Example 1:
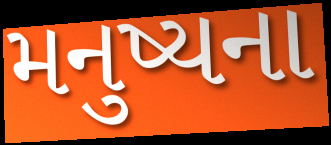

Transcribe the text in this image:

મનુષ્યના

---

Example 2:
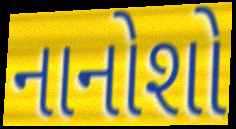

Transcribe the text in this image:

નાનોશો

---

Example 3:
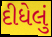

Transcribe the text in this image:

દીધેલું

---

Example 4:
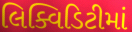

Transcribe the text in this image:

લિક્વિડિટીમાં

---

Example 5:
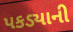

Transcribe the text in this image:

પકડ્યાની